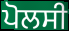
ਪੋਲਸੀ